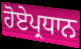
ਹੋਏਪ੍ਰਧਾਨ